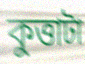
কুত্তাটা